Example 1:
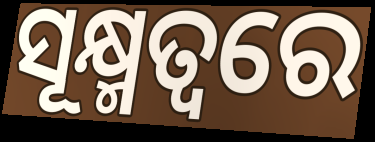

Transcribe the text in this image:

ସୂକ୍ଷ୍ମତ୍ୱରେ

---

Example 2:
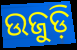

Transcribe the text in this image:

ଉଜୁଡ଼ି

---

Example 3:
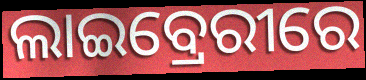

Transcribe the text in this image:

ଲାଇବ୍ରେରୀରେ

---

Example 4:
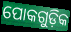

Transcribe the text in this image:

ପୋକଗୁଡ଼ିକ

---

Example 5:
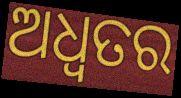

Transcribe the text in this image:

ଅଧ୍ଵତର